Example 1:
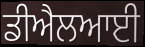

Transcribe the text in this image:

ਡੀਐਲਆਈ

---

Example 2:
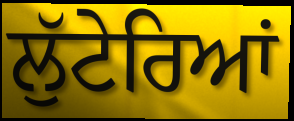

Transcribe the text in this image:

ਲੁੱਟੇਰਿਆਂ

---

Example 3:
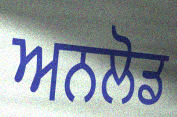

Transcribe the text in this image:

ਅਨਲੋਡ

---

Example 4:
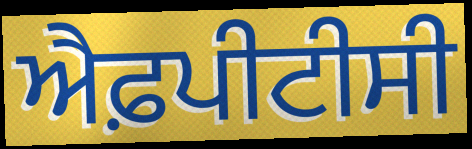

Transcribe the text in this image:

ਐਫ਼ਪੀਟੀਸੀ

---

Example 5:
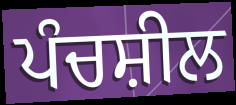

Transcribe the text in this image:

ਪੰਚਸ਼ੀਲ